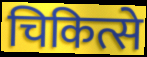
चिकित्से